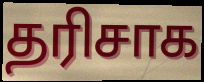
தரிசாக